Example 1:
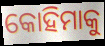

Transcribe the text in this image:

କୋହିମାକୁ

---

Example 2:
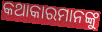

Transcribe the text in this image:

କଥାକାରମାନଙ୍କୁ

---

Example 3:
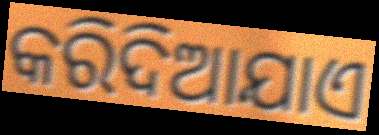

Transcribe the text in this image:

କରିଦିଆଯାଏ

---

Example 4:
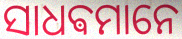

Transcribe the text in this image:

ସାଧଵମାନେ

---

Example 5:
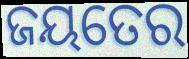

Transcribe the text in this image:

ଜୟତେର